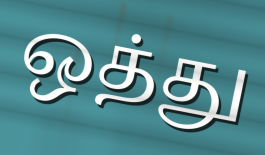
ஒத்து